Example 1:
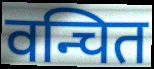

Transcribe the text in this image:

वन्चित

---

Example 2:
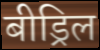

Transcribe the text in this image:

बीड्रिल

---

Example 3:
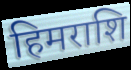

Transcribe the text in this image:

हिमराशि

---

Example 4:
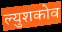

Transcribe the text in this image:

ल्युशकोव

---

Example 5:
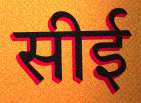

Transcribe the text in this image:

सीई